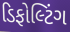
ડિફોલ્ટિંગ